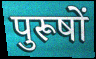
पुरूषों